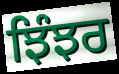
ਝਿੰਝਰ